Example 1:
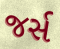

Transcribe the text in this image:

જર્સ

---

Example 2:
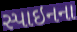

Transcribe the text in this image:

સ્પાઇનના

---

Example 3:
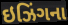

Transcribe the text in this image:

ઇઝિંગના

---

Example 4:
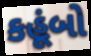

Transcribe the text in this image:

કહૂંબો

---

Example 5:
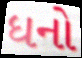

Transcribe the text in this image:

ધનો